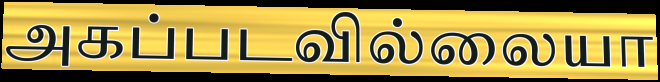
அகப்படவில்லையா